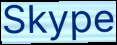
Skype